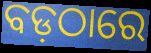
ବଡ଼ଠାରେ